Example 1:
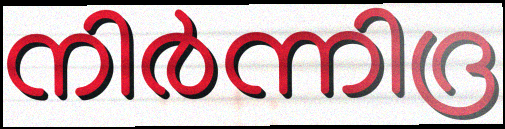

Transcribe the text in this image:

നിർന്നിദ്ര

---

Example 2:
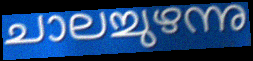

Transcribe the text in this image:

ചാലച്ചുഴന്നു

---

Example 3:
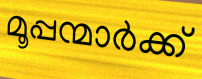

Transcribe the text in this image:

മൂപ്പന്മാർക്ക്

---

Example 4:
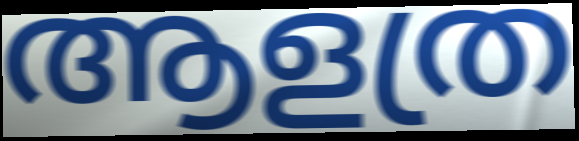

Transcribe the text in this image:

ആളത്ര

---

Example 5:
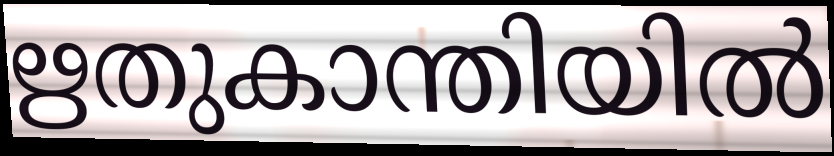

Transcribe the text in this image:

ഋതുകാന്തിയിൽ